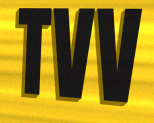
TVV